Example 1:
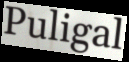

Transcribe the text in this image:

Puligal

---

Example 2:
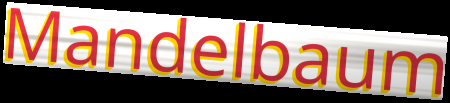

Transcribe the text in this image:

Mandelbaum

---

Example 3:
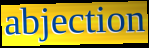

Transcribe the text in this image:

abjection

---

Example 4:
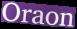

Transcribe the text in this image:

Oraon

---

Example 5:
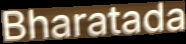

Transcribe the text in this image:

Bharatada